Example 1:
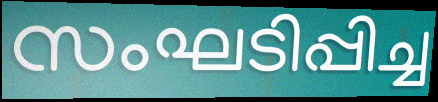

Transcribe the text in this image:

സംഘടിപ്പിച്ച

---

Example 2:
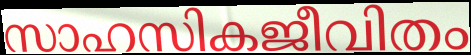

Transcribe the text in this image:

സാഹസികജീവിതം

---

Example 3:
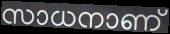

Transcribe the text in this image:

സാധനാണ്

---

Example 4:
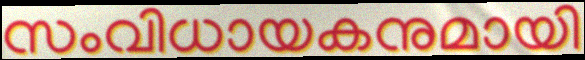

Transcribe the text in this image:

സംവിധായകനുമായി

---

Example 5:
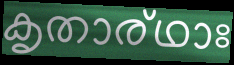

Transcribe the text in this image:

കൃതാര്ഥാഃ